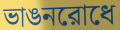
ভাঙনরোধে